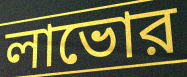
লাভোর